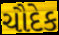
ચૌદેક